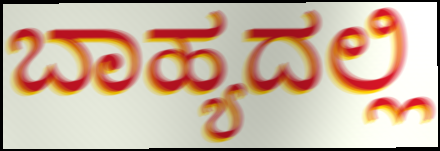
ಬಾಹ್ಯದಲ್ಲಿ